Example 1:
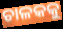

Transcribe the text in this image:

ଚାଳକକୁ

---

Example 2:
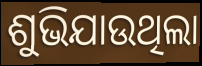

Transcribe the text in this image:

ଶୁଭିଯାଉଥିଲା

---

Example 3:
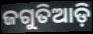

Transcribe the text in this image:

ଜଗୁତିଆଡ଼ି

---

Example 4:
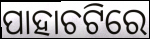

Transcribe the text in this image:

ପାହାଚଟିରେ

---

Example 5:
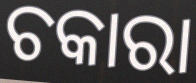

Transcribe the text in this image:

ଚକାରା